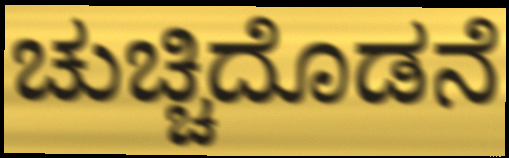
ಚುಚ್ಚಿದೊಡನೆ